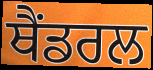
ਥੈਂਡਰਲ